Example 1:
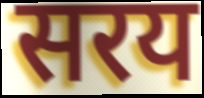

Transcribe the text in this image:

सरय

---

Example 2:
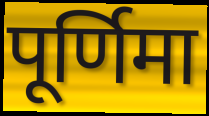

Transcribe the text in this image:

पूर्णिमा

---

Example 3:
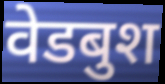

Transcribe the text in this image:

वेडबुश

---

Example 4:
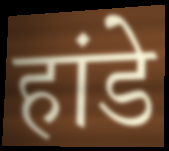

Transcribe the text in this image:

हांडे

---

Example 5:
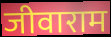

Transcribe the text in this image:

जीवाराम